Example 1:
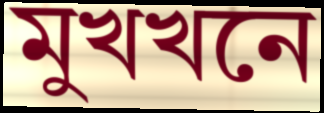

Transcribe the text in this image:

মুখখনে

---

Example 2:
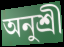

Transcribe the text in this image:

অনুশ্ৰী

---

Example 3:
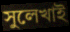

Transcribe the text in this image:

সুলেখাই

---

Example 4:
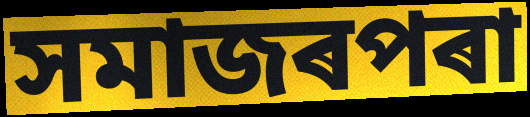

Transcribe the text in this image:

সমাজৰপৰা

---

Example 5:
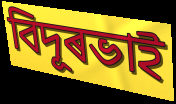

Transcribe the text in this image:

বিদূৰভাই